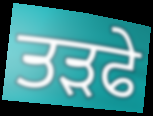
ਤੜਫੇ